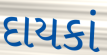
દાયકાં